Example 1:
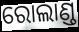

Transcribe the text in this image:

ରୋଲାଣ୍ଡ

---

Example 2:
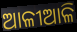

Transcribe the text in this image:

ଆଳୀଆଳି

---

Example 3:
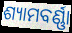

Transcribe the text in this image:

ଶ୍ୟାମବର୍ଣ୍ଣା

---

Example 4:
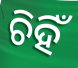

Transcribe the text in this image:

ଚିହିଁ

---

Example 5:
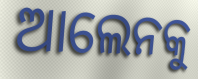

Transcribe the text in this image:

ଆଲେନକୁ